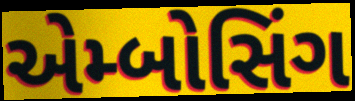
એમ્બોસિંગ